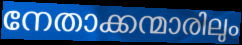
നേതാക്കന്മാരിലും